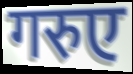
गरुए